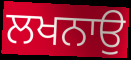
ਲਖਨਾਉ